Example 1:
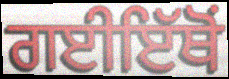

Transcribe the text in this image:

ਗਈਇੱਥੋਂ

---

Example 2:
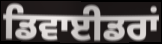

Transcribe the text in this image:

ਡਿਵਾਈਡਰਾਂ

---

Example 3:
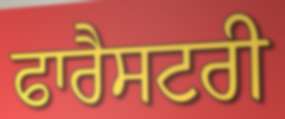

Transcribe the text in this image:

ਫਾਰੈਸਟਰੀ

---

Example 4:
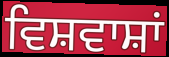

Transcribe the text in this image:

ਵਿਸ਼ਵਾਸ਼ਾਂ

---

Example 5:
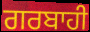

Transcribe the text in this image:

ਗਰਬਾਹੀ